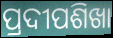
ପ୍ରଦୀପଶିଖା